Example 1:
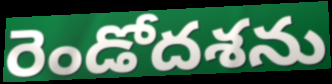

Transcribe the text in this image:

రెండోదశను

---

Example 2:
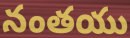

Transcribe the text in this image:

నంతయు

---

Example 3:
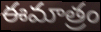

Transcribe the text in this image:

ఈమాత్రం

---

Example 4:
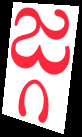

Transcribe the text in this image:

జ్గ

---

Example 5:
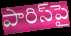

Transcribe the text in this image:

పారిస్‌పై